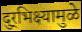
दुर्भिक्ष्यामुळे